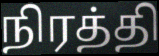
நிரத்தி